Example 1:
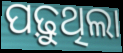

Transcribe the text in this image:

ପଢ଼ୁଥିଲା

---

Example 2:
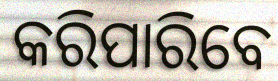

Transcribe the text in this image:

କରିପାରିବେ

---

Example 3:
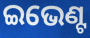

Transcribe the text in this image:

ଇଭେଣ୍ଟ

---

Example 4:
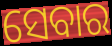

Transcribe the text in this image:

ସେବାର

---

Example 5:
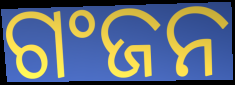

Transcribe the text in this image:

ଗଂଜନ